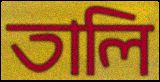
তালি